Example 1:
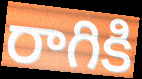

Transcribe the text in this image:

రాగికి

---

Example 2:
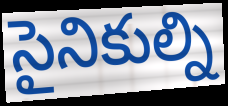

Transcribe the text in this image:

సైనికుల్ని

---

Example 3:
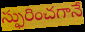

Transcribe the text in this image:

స్ఫురించగానే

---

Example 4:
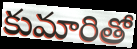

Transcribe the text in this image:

కుమారితో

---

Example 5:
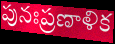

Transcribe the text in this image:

పునఃప్రణాళిక